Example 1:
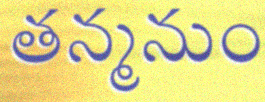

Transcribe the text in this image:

తన్మనుం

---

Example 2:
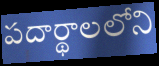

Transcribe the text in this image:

పదార్థాలలోని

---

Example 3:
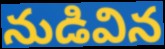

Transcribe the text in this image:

నుడివిన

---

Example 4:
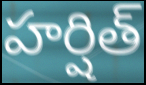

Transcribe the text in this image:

హర్షిత్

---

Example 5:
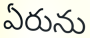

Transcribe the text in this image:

ఏరును